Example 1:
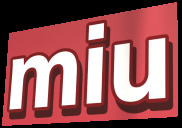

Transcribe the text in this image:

miu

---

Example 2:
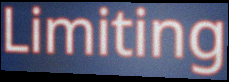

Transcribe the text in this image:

Limiting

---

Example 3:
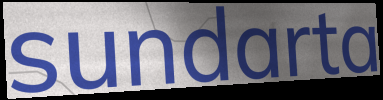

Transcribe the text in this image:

sundarta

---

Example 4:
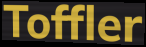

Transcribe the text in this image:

Toffler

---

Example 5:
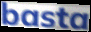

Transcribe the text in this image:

basta